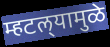
म्हटल्यामुळे